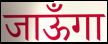
जाऊँगा